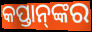
କପ୍ତାନ୍‌ଙ୍କର